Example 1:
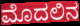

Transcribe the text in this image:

ಮೊದಲಿನ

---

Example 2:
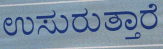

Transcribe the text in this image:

ಉಸುರುತ್ತಾರೆ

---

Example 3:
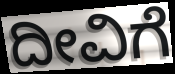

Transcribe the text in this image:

ದೀವಿಗೆ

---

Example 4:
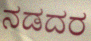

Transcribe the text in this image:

ನಡದರ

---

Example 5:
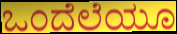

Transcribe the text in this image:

ಒಂದೆಲೆಯೂ